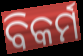
ବିକର୍ମ